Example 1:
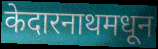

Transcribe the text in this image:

केदारनाथमधून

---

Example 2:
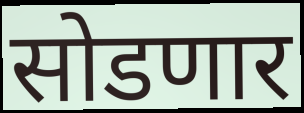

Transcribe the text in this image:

सोडणार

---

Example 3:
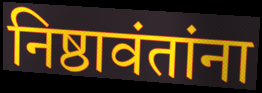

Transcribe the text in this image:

निष्ठावंतांना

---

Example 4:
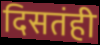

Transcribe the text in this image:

दिसतंही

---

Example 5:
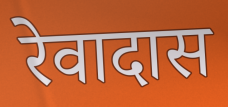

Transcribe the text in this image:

रेवादास